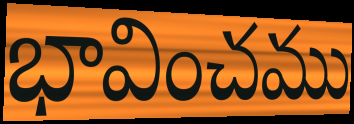
భావించము